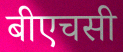
बीएचसी